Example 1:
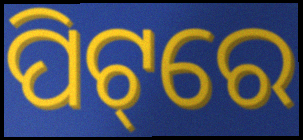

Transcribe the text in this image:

ପିଟ୍‌ରେ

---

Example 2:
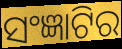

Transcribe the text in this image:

ସଂଜ୍ଞାଟିର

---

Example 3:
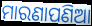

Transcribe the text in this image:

ମାରଣାପଣିଆ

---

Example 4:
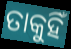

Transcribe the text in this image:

ତାକୁହିଁ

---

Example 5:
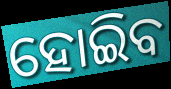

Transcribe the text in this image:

ହୋଇିବ